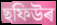
ছফিউৰ